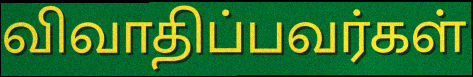
விவாதிப்பவர்கள்